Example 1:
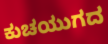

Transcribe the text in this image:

ಕುಚಯುಗದ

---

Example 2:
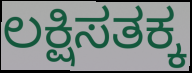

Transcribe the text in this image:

ಲಕ್ಷಿಸತಕ್ಕ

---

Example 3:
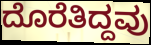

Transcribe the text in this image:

ದೊರೆತಿದ್ದವು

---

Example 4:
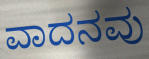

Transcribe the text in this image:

ವಾದನವು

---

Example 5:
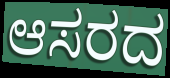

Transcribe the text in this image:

ಆಸರದ